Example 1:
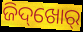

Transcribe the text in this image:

ଜିଦ୍‌ଖୋର୍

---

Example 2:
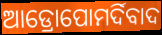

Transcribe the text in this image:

ଆଡ୍ରୋପୋମର୍ଦିବାଦ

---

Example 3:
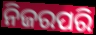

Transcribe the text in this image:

ନିଜରପରି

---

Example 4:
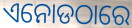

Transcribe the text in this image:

ଏନୋଡଠାରେ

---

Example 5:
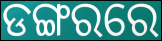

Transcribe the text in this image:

ଡଙ୍ଗରରେ